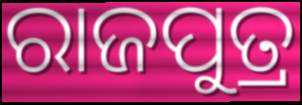
ରାଜପୁତ୍ର